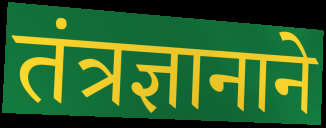
तंत्रज्ञानाने